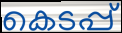
കെടപ്പ്